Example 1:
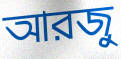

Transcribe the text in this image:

আরজু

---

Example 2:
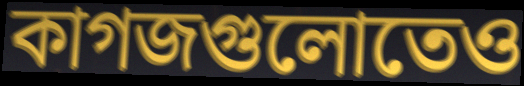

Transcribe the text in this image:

কাগজগুলোতেও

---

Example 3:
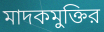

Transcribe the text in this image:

মাদকমুক্তির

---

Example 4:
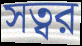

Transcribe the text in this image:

সত্বর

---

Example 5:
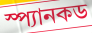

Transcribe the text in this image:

স্প্যানকড